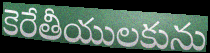
కెరేతీయులకును